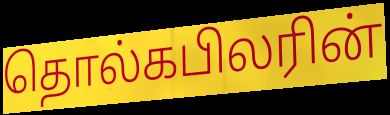
தொல்கபிலரின்